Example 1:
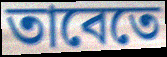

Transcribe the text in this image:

তাবেতে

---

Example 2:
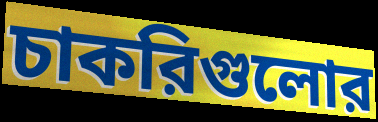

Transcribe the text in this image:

চাকরিগুলোর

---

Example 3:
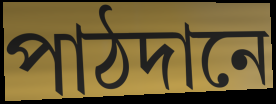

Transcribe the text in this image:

পাঠদানে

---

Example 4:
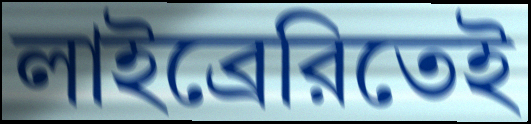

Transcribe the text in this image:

লাইব্রেরিতেই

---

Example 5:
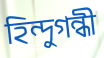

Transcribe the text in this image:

হিন্দুগন্ধী